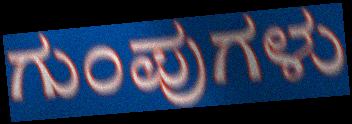
ಗುಂಪುಗಳು